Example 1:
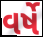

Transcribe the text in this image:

વર્ષે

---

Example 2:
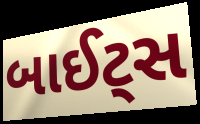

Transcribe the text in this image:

બાઈટ્સ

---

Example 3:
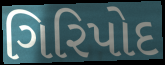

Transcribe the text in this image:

ગિરિપોદ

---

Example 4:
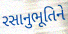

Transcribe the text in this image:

રસાનુભૂતિને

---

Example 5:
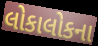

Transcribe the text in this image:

લોકાલોકના